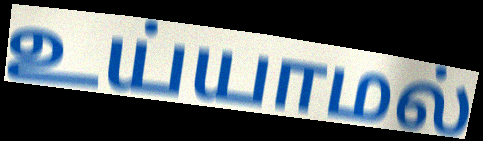
உய்யாமல்